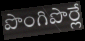
పొంగిపొర్లే